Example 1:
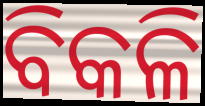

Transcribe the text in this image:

ବିକଳି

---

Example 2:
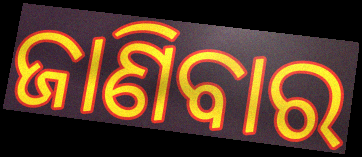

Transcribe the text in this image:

ଜାଣିବାର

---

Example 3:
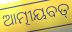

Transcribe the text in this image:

ଆତ୍ମୀୟବତ୍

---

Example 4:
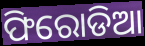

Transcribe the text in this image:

ଫିରୋଡିଆ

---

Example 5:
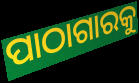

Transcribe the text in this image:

ପାଠାଗାରକୁ